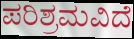
ಪರಿಶ್ರಮವಿದೆ